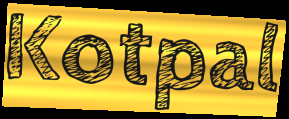
Kotpal